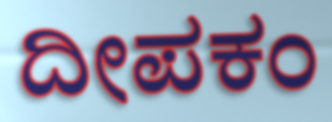
ದೀಪಕಂ